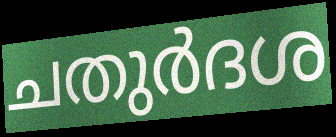
ചതുർദശ